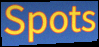
Spots